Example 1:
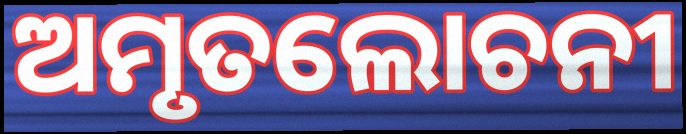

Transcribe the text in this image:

ଅମୃତଲୋଚନୀ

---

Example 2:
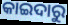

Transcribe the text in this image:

କାଇଦାରୁ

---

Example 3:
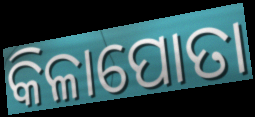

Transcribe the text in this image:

କିଳାପୋତା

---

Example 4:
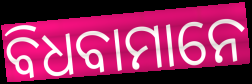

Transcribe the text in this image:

ବିଧବାମାନେ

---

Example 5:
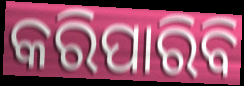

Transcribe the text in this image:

କରିପାରିବି